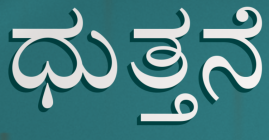
ಧುತ್ತನೆ